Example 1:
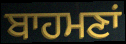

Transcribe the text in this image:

ਬਾਹਮਣਾਂ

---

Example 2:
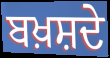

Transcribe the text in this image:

ਬਖ਼ਸ਼ਦੇ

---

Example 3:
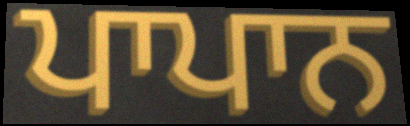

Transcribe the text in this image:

ਪਾਪਾਨ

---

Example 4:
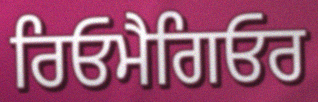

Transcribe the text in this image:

ਰਿਓਮੈਗਿਓਰ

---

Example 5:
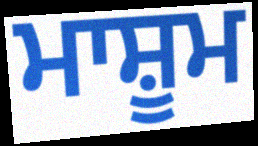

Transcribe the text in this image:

ਮਾਸ਼ੂਮ